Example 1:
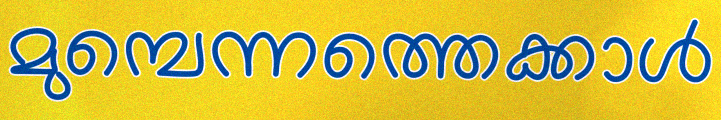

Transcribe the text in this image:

മുമ്പെന്നത്തെക്കാൾ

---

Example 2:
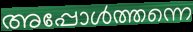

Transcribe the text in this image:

അപ്പോൾത്തന്നെ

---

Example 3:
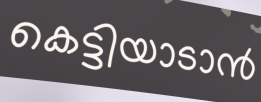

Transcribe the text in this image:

കെട്ടിയാടാൻ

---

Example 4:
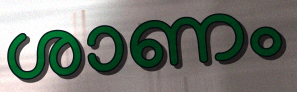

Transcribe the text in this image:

ശാണം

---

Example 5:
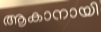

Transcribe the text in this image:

ആകാനായി